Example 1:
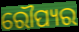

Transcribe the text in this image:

ରୌପ୍ୟର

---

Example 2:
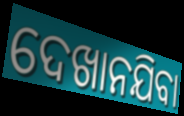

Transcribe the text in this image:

ଦେଖାନଯିବା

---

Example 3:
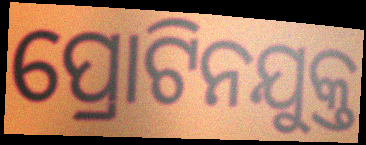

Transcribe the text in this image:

ପ୍ରୋଟିନଯୁକ୍ତ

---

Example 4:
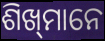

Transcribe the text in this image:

ଶିଖ୍‌ମାନେ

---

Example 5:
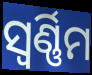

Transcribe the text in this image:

ସ୍ୱର୍ଣ୍ଣିମ